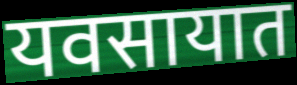
यवसायात